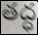
తద్ధ